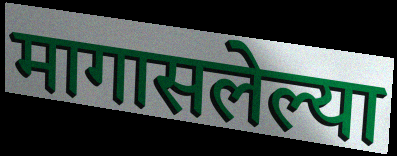
मागासलेल्या